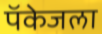
पॅकेजला